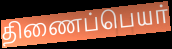
திணைப்பெயர்